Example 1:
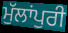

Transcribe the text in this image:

ਮੁੱਲਾਂਪੁਰੀ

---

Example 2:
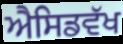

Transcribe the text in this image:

ਐਸਿਡਵੱਖ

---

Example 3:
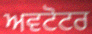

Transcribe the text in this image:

ਅਵਟੋਟਰ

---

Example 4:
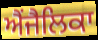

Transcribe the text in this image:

ਐਂਜੈਲਿਕਾ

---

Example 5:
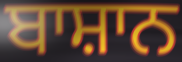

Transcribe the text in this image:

ਬਾਸ਼ਾਨ